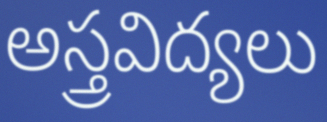
అస్త్రవిద్యలు